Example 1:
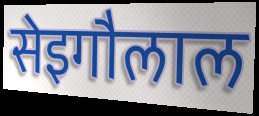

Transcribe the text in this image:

सेइगौलाल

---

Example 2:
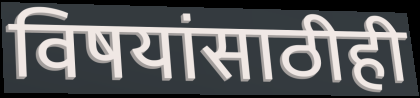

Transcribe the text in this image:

विषयांसाठीही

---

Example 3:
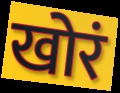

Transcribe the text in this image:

खोरं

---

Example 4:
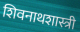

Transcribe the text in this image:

शिवनाथशास्त्री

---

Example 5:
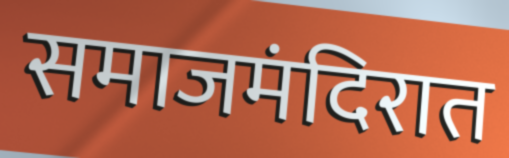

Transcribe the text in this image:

समाजमंदिरात